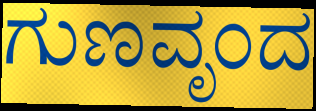
ಗುಣವೃಂದ